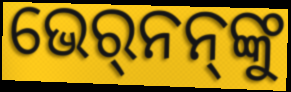
ଭେର୍‍ନନ୍‌ଙ୍କୁ